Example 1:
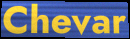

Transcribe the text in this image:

Chevar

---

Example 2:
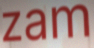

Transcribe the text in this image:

zam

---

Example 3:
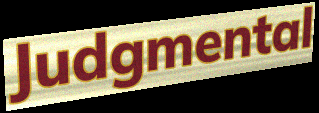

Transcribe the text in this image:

Judgmental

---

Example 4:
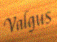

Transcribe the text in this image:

Valgus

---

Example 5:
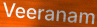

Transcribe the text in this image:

Veeranam